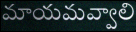
మాయమవ్వాలి